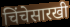
चिंचेसारखी